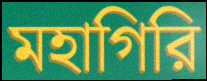
মহাগিরি